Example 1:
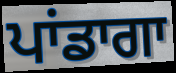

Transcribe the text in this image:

ਪਾਂਡਾਗਾ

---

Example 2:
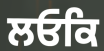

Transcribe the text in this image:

ਲਓਕਿ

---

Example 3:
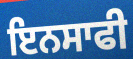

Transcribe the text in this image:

ਇਨਸਾਫੀ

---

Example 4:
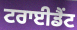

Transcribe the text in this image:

ਟਰਾਈਡੈਂਟ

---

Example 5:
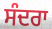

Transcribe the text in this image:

ਸੰਦਰਾ